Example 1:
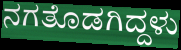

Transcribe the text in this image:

ನಗತೊಡಗಿದ್ದಳು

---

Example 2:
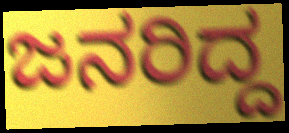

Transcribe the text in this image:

ಜನರಿದ್ದ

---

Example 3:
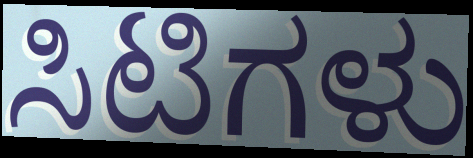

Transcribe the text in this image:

ಸಿಟಿಗಳು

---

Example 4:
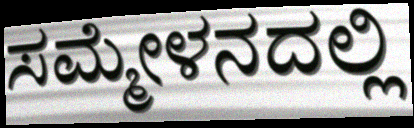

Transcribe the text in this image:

ಸಮ್ಮೇಳನದಲ್ಲಿ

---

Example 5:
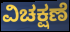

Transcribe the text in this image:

ವಿಚಕ್ಷಣೆ